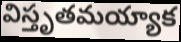
విస్తృతమయ్యాక